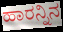
ಹಾರನ್ನಿನ